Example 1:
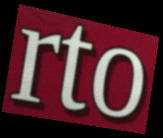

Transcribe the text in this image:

rto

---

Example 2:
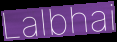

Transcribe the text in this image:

Lalbhai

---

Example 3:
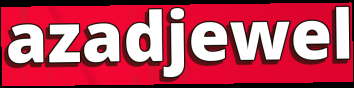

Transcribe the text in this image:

azadjewel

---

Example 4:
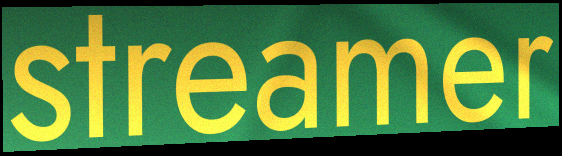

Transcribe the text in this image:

streamer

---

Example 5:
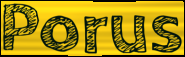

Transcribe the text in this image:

Porus